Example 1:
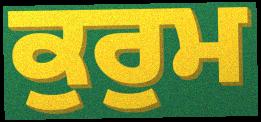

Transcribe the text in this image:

ਕੁਰੁਮ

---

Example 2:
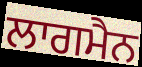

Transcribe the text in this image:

ਲਾਗਮੈਨ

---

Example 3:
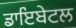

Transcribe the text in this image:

ਡਾਇਬੇਟਲ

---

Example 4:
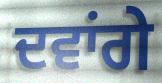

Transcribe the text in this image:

ਦਵਾਂਗੇ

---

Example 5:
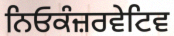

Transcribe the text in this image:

ਨਿਓਕੰਜ਼ਰਵੇਟਿਵ